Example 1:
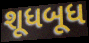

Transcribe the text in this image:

શૂધબૂધ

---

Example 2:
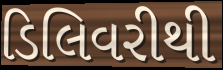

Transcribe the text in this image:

ડિલિવરીથી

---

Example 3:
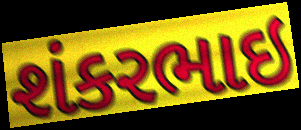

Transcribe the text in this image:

શંકરભાઇ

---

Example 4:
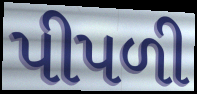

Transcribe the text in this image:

પીપળી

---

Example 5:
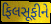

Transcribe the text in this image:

ફિલસૂફીને